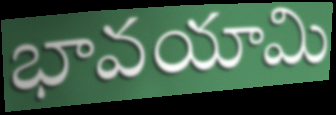
భావయామి